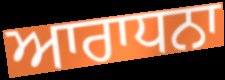
ਆਰਾਧਨਾ